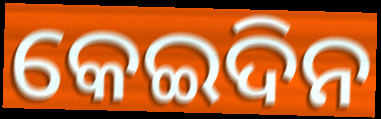
କେଇଦିନ